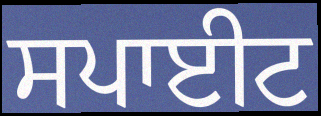
ਸਪਾਈਟ